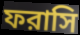
ফরাসি